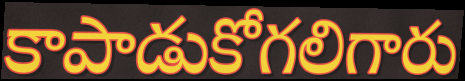
కాపాడుకోగలిగారు